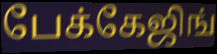
பேக்கேஜிங்